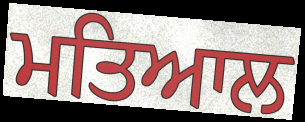
ਮਤਿਆਲ